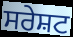
ਸਰੇਸ਼ਟ